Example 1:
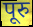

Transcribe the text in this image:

पूरु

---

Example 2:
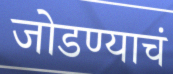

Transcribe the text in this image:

जोडण्याचं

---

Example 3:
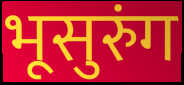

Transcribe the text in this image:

भूसुरुंग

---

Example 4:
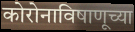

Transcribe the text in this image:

कोरोनाविषाणूच्या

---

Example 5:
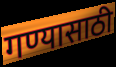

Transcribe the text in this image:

गण्यासाठी